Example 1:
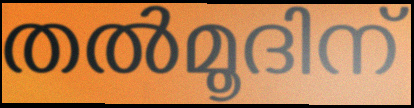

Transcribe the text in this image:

തൽമൂദിന്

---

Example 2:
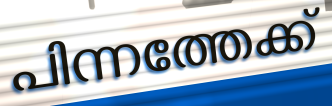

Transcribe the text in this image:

പിന്നത്തേക്ക്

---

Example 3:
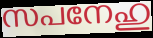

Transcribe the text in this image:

സപനേഹു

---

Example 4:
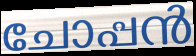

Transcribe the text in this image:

ചോപ്പൻ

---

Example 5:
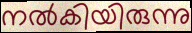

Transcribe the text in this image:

നൽകിയിരുന്നു